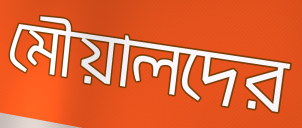
মৌয়ালদের